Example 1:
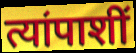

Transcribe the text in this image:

त्यांपाशीं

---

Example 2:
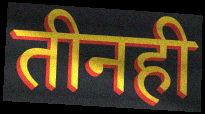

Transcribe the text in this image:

तीनही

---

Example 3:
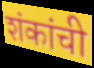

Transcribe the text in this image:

शंकांची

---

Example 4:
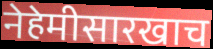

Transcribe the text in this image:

नेहेमीसारखाच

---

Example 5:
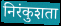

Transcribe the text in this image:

निरंकुशता